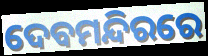
ଦେବମନ୍ଦିରରେ